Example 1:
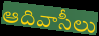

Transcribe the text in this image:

ఆదివాసీలు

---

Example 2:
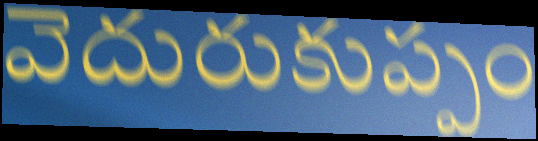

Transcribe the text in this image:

వెదురుకుప్పం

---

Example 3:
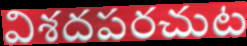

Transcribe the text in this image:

విశదపరచుట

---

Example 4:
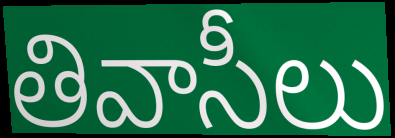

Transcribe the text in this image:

తివాసీలు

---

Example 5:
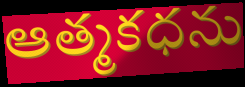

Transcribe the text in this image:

ఆత్మకధను